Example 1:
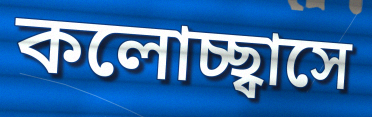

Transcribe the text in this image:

কলোচ্ছ্বাসে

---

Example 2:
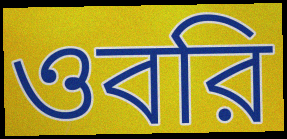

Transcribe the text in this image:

ওবরি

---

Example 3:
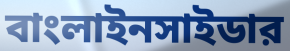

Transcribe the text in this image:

বাংলাইনসাইডার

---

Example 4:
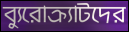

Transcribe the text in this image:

ব্যুরোক্র্যাটদের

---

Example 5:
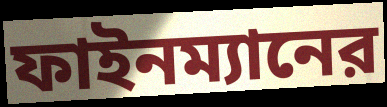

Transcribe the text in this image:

ফাইনম্যানের